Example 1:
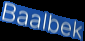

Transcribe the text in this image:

Baalbek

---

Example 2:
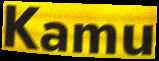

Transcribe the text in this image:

Kamu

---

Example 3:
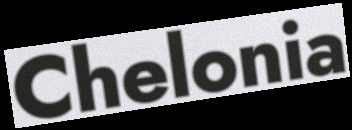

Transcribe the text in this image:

Chelonia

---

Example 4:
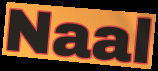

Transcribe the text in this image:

Naal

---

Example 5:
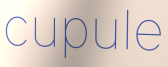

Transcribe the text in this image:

cupule